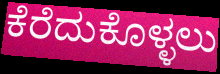
ಕೆರೆದುಕೊಳ್ಳಲು